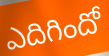
ఎదిగిందో